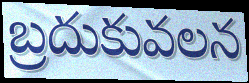
బ్రదుకువలన